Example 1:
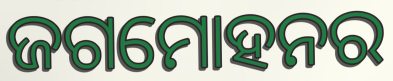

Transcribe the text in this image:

ଜଗମୋହନର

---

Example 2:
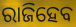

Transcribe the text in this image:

ରାଜିହେବ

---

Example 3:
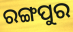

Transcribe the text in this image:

ରଙ୍ଗପୁର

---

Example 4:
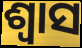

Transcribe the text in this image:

ଶ୍ୱାସ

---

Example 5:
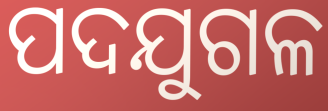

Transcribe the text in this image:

ପଦଯୁଗଳ